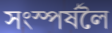
সংস্পৰ্ষলৈ